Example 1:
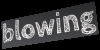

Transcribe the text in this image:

blowing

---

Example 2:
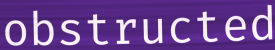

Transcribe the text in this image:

obstructed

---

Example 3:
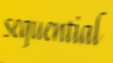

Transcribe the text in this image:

sequential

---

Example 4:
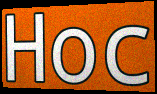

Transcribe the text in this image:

Hoc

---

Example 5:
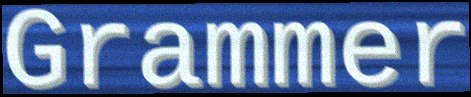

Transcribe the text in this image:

Grammer